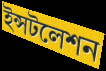
ইন্সটলেশন